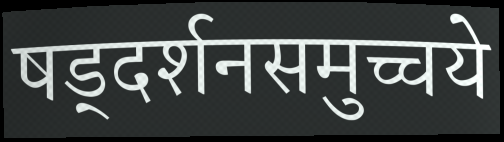
षड्दर्शनसमुच्चये